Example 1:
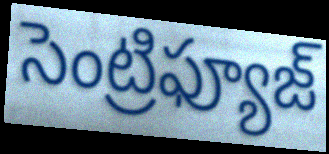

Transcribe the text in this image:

సెంట్రిఫ్యూజ్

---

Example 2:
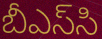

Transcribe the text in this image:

బీఎస్‌సి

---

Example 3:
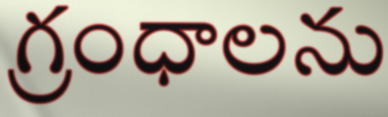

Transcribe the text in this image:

గ్రంధాలను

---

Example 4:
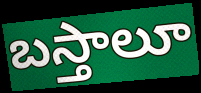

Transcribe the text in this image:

బస్తాలూ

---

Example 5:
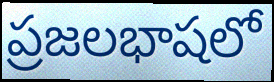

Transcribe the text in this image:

ప్రజలభాషలో